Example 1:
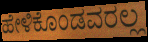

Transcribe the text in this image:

ಹೇಳಿಕೊಂಡವರಲ್ಲ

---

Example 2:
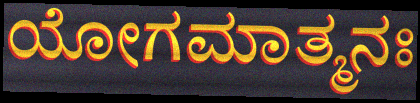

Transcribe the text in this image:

ಯೋಗಮಾತ್ಮನಃ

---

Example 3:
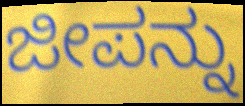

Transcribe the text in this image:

ಜೀಪನ್ನು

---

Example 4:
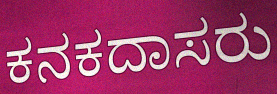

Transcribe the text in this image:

ಕನಕದಾಸರು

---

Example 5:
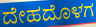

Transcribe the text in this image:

ದೇಹದೊಳಗ